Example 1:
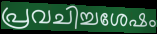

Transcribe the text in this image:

പ്രവചിച്ചശേഷം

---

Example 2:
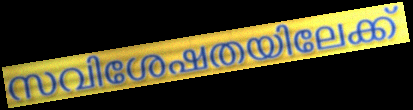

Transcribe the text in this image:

സവിശേഷതയിലേക്ക്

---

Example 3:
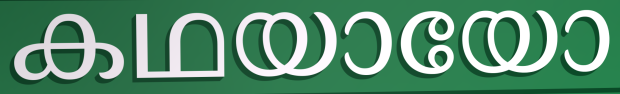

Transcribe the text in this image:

കഥയായോ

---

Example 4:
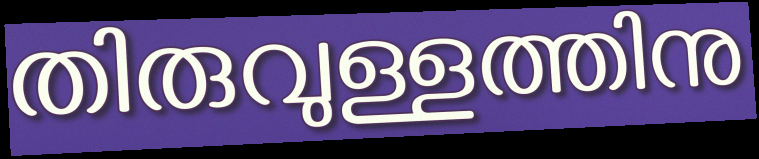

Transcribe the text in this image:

തിരുവുള്ളത്തിനു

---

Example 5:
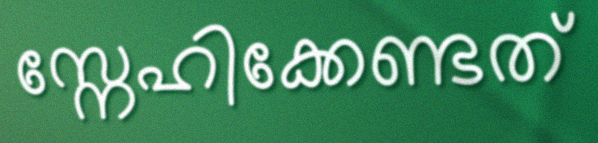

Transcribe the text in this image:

സ്നേഹിക്കേണ്ടത്